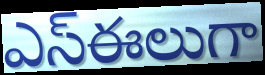
ఎస్ఈలుగా